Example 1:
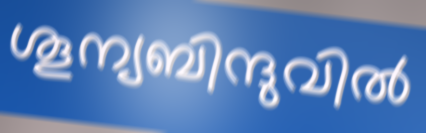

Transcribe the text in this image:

ശൂന്യബിന്ദുവിൽ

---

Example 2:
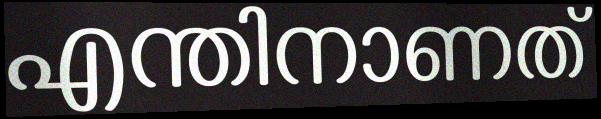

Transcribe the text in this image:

എന്തിനാണത്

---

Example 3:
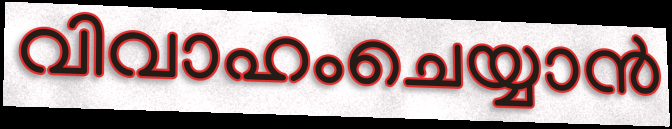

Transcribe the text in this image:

വിവാഹംചെയ്യാൻ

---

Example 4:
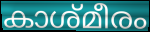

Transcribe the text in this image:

കാശ്മീരം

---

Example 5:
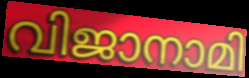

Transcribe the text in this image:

വിജാനാമി